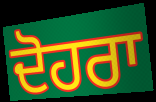
ਦੋਹਰਾ